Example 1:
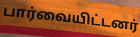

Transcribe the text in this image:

பார்வையிட்டனர்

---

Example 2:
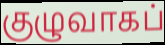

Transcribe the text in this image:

குழுவாகப்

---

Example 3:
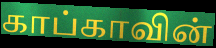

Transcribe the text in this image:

காப்காவின்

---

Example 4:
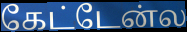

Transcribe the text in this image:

கேட்டேன்ல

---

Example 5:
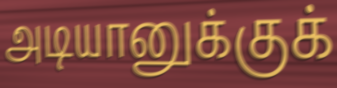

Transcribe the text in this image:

அடியானுக்குக்